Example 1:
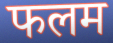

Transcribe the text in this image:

फलम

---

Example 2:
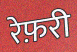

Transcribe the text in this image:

रेफ़री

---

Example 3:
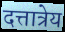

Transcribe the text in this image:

दत्तात्रेय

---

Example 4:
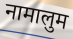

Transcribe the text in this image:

नामालुम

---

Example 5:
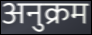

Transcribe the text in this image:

अनुक्रम